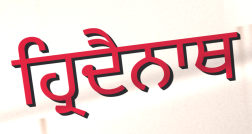
ਹ੍ਰਿਦੈਨਾਥ